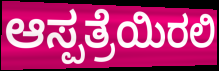
ಆಸ್ಪತ್ರೆಯಿರಲಿ